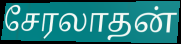
சேரலாதன்